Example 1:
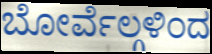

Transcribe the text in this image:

ಬೋರ್ವೆಲ್ಗಳಿಂದ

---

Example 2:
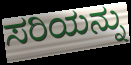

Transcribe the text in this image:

ಸರಿಯನ್ನು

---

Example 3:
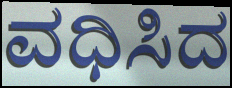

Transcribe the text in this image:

ವಧಿಸಿದ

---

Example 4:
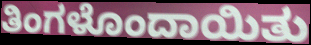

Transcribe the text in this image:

ತಿಂಗಳೊಂದಾಯಿತು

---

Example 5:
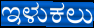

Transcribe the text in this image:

ಇಳುಕಲು